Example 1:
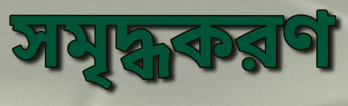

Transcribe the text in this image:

সমৃদ্ধকরণ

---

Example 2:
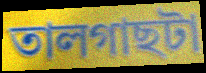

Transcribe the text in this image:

তালগাছটা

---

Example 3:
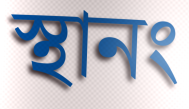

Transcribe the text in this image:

স্থানং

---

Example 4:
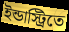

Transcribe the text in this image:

ইন্ডাস্ট্রিতে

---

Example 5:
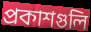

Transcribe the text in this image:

প্রকাশগুলি